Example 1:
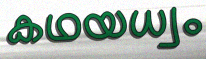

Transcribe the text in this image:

കഥയധ്വം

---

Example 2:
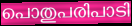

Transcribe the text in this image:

പൊതുപരിപാടി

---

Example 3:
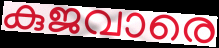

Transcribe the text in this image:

കുജവാരെ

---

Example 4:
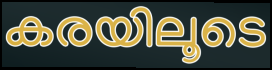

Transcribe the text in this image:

കരയിലൂടെ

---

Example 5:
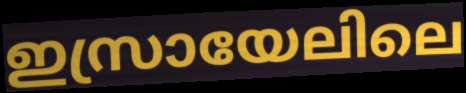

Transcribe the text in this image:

ഇസ്രായേലിലെ